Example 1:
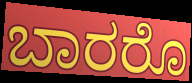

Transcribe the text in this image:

ಬಾರರೊ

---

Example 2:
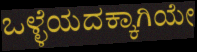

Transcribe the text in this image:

ಒಳ್ಳೆಯದಕ್ಕಾಗಿಯೇ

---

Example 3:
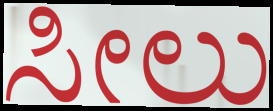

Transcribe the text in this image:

ಸೀಲು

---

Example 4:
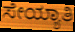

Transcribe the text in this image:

ಸೇಯ್ಯಾತಿ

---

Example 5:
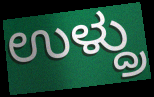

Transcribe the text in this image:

ಉಳ್ದ್ರು